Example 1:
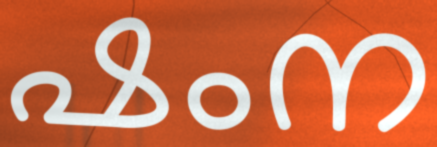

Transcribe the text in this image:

ഷംന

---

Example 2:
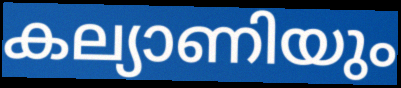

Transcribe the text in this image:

കല്യാണിയും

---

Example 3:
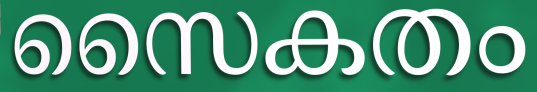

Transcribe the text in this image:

സൈകതം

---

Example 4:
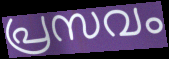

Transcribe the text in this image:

പ്രസവം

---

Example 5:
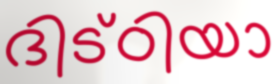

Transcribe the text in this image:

ദിട്ഠിയാ